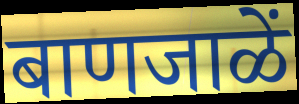
बाणजाळें